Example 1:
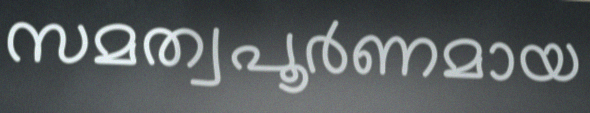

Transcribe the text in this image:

സമത്വപൂർണമായ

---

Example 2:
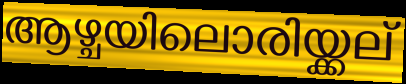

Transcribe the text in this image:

ആഴ്ചയിലൊരിയ്ക്കല്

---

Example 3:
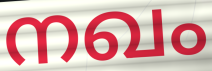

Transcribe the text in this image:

നഖം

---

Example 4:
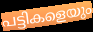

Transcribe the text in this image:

പട്ടികളെയും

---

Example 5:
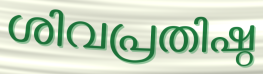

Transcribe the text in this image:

ശിവപ്രതിഷ്ഠ